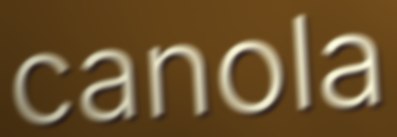
canola